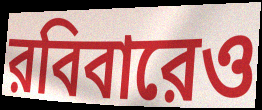
রবিবারেও